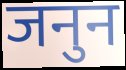
जनुन